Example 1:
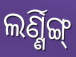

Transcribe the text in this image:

ଲର୍ଣ୍ଣିଙ୍ଗ୍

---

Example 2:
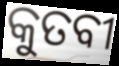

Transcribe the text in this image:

କୁତବୀ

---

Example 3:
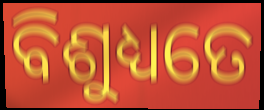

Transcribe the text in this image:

ବିଶୁଧ୍ୟତେ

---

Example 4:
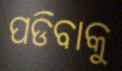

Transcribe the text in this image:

ପଡିବାକୁ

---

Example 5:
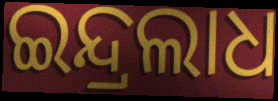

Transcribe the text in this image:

ଇନ୍ଦ୍ରଲାଧ